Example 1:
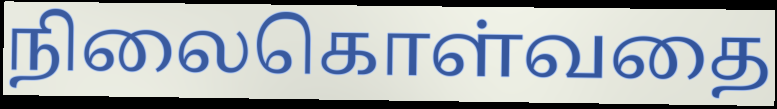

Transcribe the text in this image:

நிலைகொள்வதை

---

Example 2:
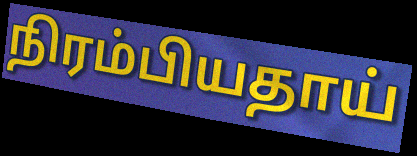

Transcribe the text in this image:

நிரம்பியதாய்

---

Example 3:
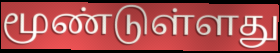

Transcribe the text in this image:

மூண்டுள்ளது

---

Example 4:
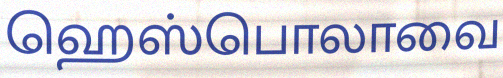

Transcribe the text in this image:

ஹெஸ்பொலாவை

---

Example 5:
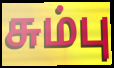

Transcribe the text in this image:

சும்பு